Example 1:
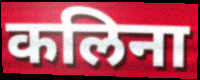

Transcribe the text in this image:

कलिना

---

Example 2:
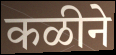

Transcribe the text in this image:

कळीने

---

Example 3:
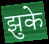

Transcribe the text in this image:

झुके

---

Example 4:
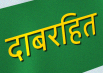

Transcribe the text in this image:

दाबरहित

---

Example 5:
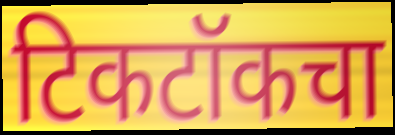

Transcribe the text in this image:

टिकटॉकचा